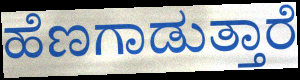
ಹೆಣಗಾಡುತ್ತಾರೆ